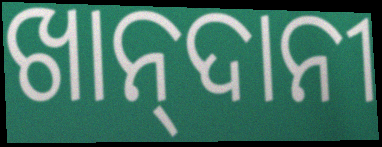
ଖାନ୍‍ଦାନୀ